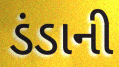
ડંડાની